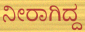
ನೀರಾಗಿದ್ದ